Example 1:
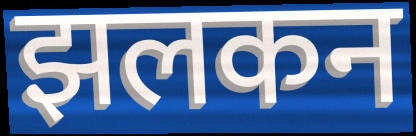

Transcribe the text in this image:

झलकन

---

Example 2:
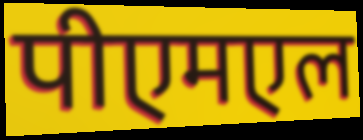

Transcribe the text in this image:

पीएमएल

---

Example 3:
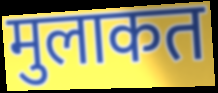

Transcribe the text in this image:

मुलाकत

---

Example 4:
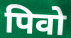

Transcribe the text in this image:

पिवो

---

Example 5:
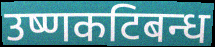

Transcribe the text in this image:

उष्णकटिबन्ध